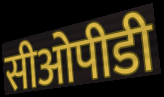
सीओपीडी